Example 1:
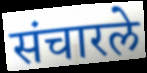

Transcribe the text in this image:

संचारले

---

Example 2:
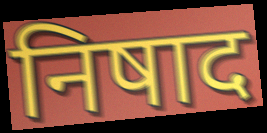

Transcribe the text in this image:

निषाद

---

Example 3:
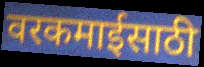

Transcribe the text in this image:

वरकमाईसाठी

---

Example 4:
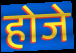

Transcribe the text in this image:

होजे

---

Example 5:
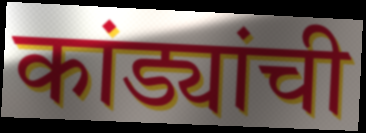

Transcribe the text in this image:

कांड्यांची